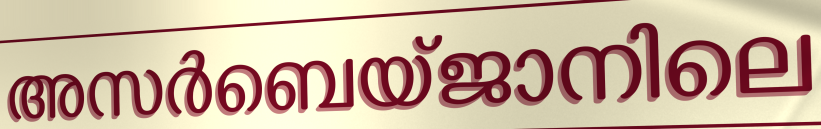
അസർബെയ്ജാനിലെ